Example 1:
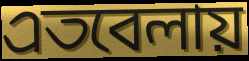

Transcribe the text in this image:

এতবেলায়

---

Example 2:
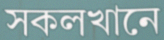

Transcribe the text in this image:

সকলখানে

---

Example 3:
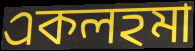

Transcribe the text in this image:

একলহমা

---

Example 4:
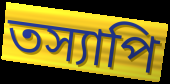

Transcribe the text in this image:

তস্যাপি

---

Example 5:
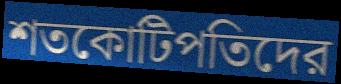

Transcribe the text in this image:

শতকোটিপতিদের